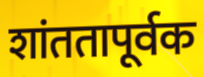
शांततापूर्वक